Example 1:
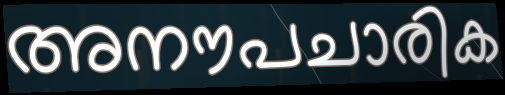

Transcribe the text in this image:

അനൗപചാരിക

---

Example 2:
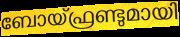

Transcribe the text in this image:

ബോയ്ഫ്രണ്ടുമായി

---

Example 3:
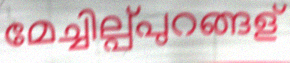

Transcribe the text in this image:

മേച്ചില്പ്പുറങ്ങള്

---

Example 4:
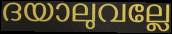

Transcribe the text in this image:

ദയാലുവല്ലേ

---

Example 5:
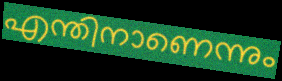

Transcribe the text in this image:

എന്തിനാണെന്നും